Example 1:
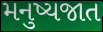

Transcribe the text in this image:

મનુષ્યજાત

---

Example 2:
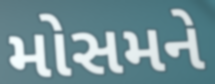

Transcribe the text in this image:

મોસમને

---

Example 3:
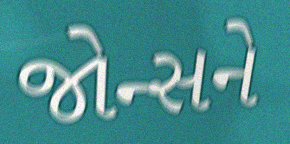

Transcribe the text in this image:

જોન્સને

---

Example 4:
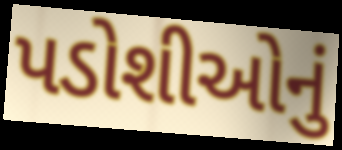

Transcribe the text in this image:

પડોશીઓનું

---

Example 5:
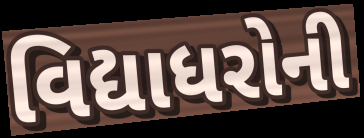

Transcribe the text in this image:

વિદ્યાધરોની